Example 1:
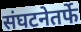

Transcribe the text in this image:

संघटनेतर्फे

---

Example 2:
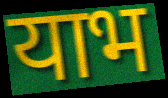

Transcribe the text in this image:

याभ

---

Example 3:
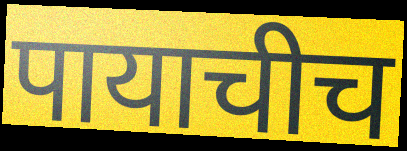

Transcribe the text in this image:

पायाचीच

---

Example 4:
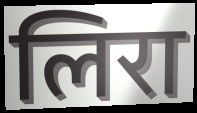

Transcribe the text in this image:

लिरा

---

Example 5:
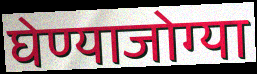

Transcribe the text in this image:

घेण्याजोग्या